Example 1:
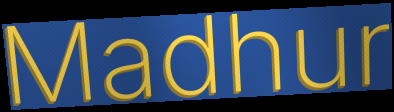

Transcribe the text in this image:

Madhur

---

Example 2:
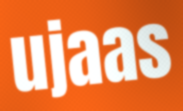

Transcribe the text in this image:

ujaas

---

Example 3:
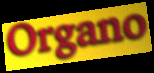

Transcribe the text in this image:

Organo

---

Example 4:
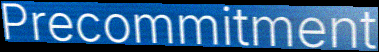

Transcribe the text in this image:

Precommitment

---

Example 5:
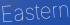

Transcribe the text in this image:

Eastern